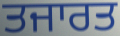
ਤਜਾਰਤ